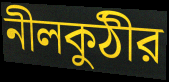
নীলকুঠীর